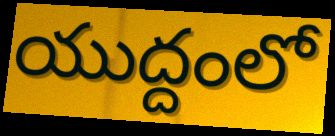
యుద్దంలో